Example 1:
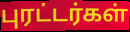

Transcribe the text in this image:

புரட்டர்கள்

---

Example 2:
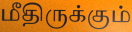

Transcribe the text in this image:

மீதிருக்கும்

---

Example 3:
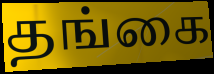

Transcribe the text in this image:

தங்கை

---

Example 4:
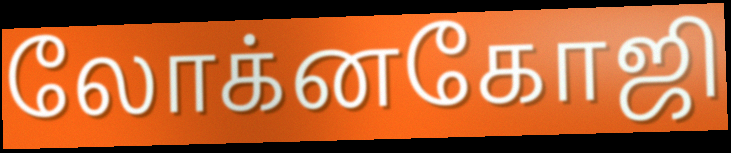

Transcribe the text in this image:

லோக்னகோஜி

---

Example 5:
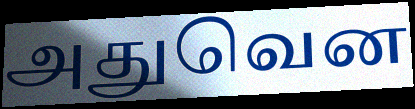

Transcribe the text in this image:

அதுவென